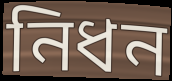
নিধন